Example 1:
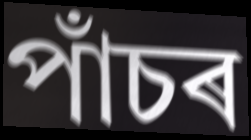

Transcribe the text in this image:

পাঁচৰ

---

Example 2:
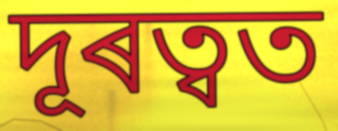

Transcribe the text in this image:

দূৰত্বত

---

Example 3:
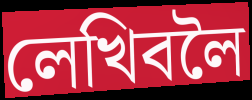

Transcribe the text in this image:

লেখিবলৈ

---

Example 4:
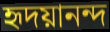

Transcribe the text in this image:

হৃদয়ানন্দ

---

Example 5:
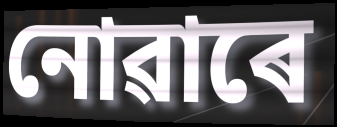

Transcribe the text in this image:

নোৱাৰে